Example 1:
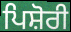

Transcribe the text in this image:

ਪਿਸ਼ੋਰੀ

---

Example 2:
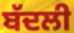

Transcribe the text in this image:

ਬੱਦਲੀ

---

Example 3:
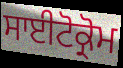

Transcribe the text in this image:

ਸਾਈਟੋਕ੍ਰੋਮ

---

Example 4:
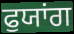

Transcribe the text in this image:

ਫੁਯਾਂਗ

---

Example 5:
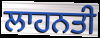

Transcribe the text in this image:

ਲਾਹਨਤੀ